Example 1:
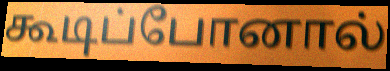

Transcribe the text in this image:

கூடிப்போனால்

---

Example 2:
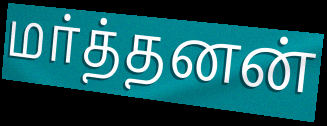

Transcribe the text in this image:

மர்த்தனன்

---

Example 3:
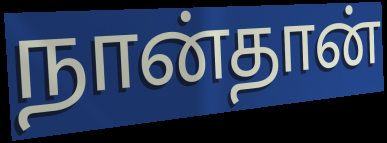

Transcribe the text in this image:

நான்தான்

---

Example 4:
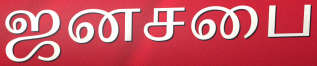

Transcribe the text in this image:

ஜனசபை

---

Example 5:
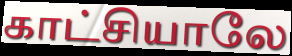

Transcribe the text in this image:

காட்சியாலே